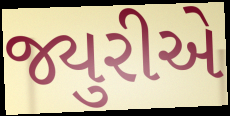
જ્યુરીએ